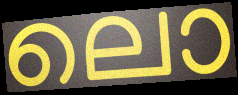
ലൊ